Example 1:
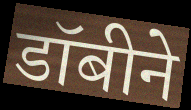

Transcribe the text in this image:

डॉबीने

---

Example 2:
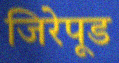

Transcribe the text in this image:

जिरेपूड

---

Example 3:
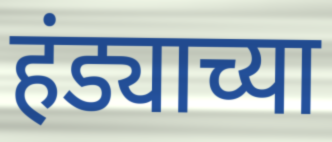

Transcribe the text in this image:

हंड्याच्या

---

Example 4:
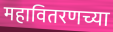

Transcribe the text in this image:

महावितरणच्या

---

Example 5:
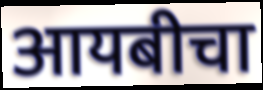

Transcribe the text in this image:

आयबीचा